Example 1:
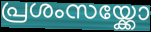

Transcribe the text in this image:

പ്രശംസയ്ക്കോ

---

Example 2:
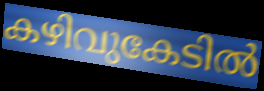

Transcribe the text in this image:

കഴിവുകേടിൽ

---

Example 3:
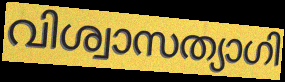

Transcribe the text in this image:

വിശ്വാസത്യാഗി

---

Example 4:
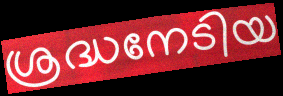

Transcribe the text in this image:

ശ്രദ്ധനേടിയ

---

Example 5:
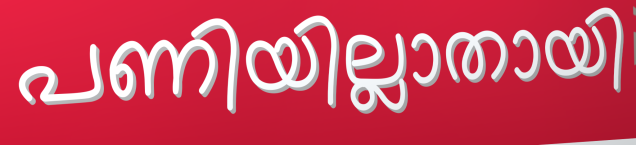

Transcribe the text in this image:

പണിയില്ലാതായി